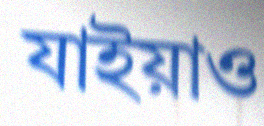
যাইয়াও